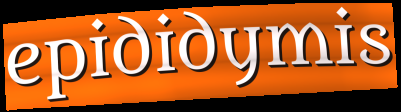
epididymis